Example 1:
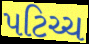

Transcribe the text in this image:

પટિચ્ચ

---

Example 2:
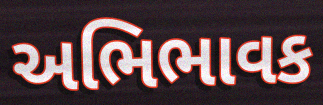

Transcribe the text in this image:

અભિભાવક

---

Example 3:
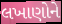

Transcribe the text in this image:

લખાણોને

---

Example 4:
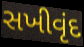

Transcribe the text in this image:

સખીવૃંદ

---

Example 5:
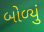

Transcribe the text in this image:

બોળ્યું